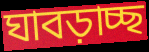
ঘাবড়াচ্ছ